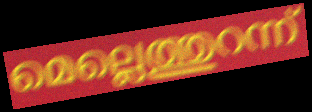
മെല്ലെത്തുറന്ന്